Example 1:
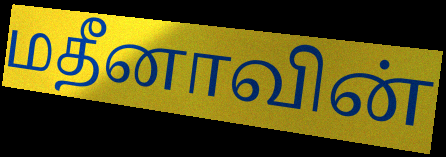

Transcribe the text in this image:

மதீனாவின்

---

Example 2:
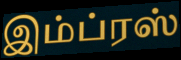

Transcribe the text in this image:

இம்ப்ரஸ்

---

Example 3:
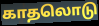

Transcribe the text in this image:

காதலொடு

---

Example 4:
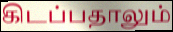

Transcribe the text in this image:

கிடப்பதாலும்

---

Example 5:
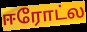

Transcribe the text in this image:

ஈரோட்ல